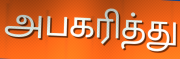
அபகரித்து